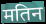
मतिन